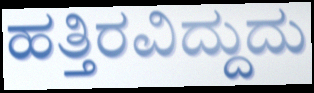
ಹತ್ತಿರವಿದ್ದುದು